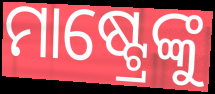
ମାଷ୍ଟ୍ରେଙ୍କୁ